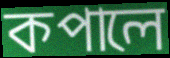
কপালে